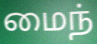
மைந்